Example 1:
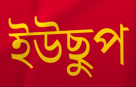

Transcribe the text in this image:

ইউছুপ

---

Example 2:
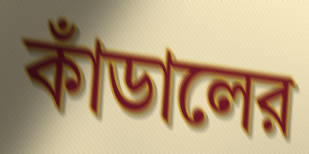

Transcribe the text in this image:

কাঁডালের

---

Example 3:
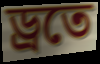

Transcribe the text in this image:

ড্রতে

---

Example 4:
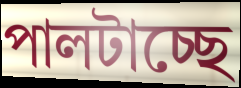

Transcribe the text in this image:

পালটাচ্ছে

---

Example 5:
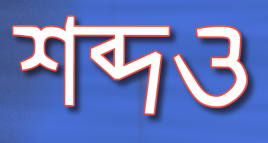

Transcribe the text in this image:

শব্দও